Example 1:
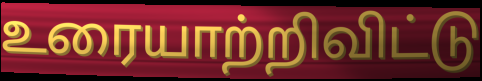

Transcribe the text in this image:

உரையாற்றிவிட்டு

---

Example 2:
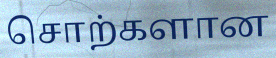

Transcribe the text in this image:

சொற்களான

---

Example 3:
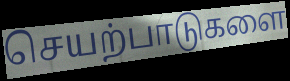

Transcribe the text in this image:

செயற்பாடுகளை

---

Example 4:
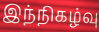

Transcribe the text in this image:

இந்நிகழ்வு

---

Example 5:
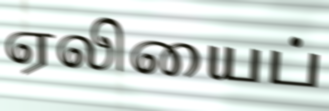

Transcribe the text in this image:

ஏலியைப்